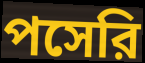
পসেরি